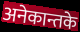
अनेकान्तके